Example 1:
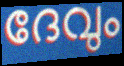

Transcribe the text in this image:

ദേവും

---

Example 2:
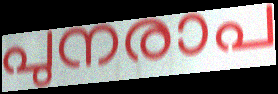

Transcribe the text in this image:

പുനരാപ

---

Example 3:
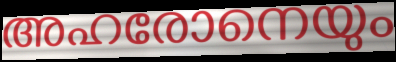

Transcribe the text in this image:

അഹരോനെയും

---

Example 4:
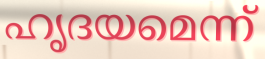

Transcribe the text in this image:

ഹൃദയമെന്ന്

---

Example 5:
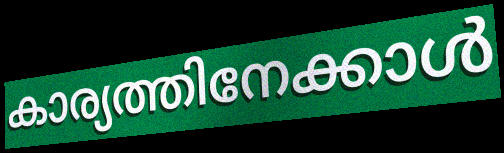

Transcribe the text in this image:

കാര്യത്തിനേക്കാൾ